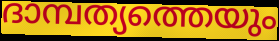
ദാമ്പത്യത്തെയും